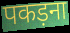
पकड़ना